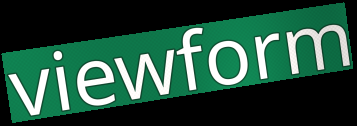
viewform